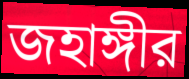
জহাঙ্গীর